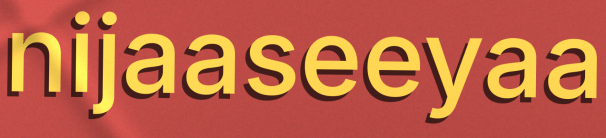
nijaaseeyaa